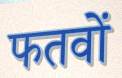
फतवों